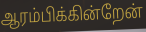
ஆரம்பிக்கின்றேன்